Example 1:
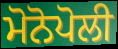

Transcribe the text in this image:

ਮੋਨੋਪੋਲੀ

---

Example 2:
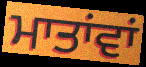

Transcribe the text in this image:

ਮਾਤਾਂਵਾਂ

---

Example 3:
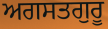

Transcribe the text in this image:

ਅਗਸਤਗੁਰੂ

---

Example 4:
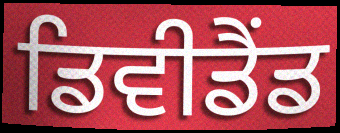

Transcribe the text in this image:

ਡਿਵੀਡੈਂਡ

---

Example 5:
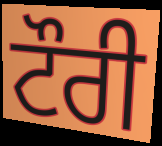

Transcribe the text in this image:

ਟੌਰੀ